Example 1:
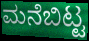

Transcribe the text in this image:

ಮನೆಬಿಟ್ಟ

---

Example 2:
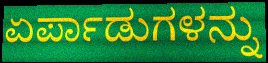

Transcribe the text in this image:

ಏರ್ಪಾಡುಗಳನ್ನು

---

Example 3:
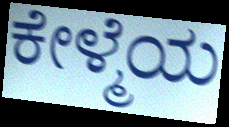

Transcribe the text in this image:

ಕೇಳ್ಮೆಯ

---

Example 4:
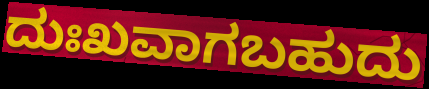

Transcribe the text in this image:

ದುಃಖವಾಗಬಹುದು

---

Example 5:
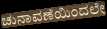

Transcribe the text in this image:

ಚುನಾವಣೆಯಿಂದಲೇ